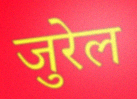
जुरेल